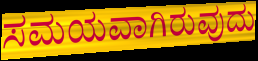
ಸಮಯವಾಗಿರುವುದು